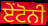
ਏਂਟੋਨੀ